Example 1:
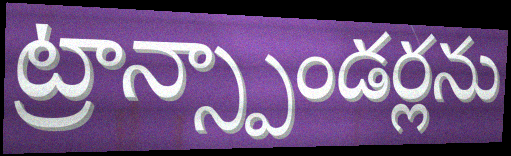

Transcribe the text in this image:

ట్రాన్స్పాండర్లను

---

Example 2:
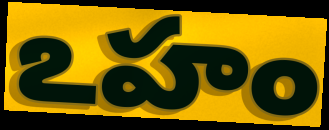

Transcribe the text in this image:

ఽహం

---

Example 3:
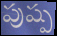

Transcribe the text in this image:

పుష్ప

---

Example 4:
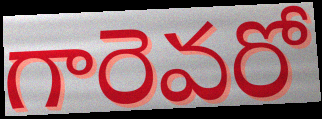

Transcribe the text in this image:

గారెవరో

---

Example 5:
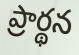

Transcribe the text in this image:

ప్రార్థన